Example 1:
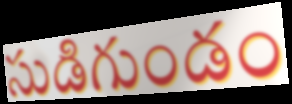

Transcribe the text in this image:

సుడిగుండం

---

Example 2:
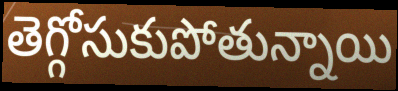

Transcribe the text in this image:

తెగ్గోసుకుపోతున్నాయి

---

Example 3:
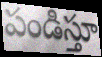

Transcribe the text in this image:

పండిస్తూ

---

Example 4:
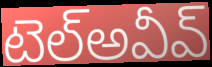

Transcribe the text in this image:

టెల్అవీవ్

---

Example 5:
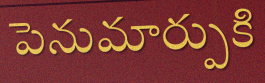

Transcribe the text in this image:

పెనుమార్పుకి